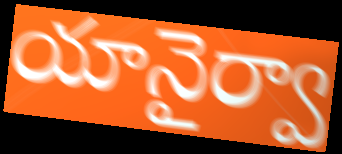
యానైర్వా